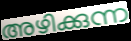
അഴിക്കുന്ന